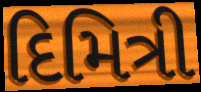
દિમિત્રી